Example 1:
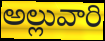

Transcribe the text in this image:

అల్లువారి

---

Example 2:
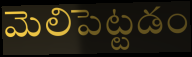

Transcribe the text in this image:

మెలిపెట్టడం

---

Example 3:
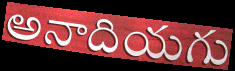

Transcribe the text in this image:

అనాదియగు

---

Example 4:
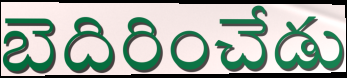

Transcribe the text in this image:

బెదిరించేడు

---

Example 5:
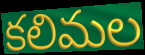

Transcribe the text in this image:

కలిమల